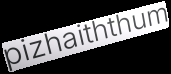
pizhaiththum